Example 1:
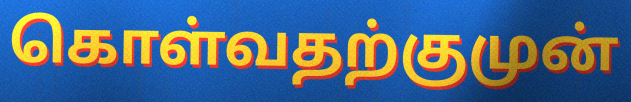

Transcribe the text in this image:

கொள்வதற்குமுன்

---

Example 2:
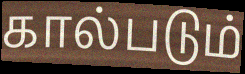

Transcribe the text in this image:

கால்படும்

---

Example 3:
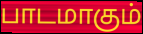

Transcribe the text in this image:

பாடமாகும்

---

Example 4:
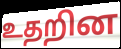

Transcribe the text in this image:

உதறின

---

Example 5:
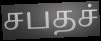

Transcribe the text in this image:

சபதச்